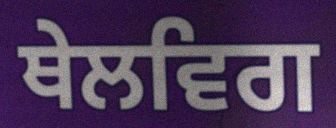
ਥੇਲਵਿਗ